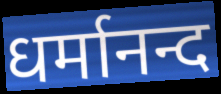
धर्मानन्द